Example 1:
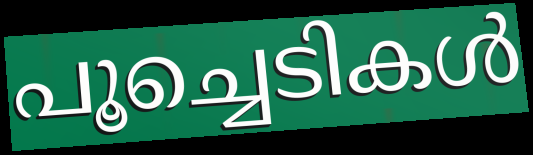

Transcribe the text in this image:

പൂച്ചെടികൾ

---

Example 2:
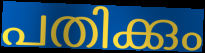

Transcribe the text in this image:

പതിക്കും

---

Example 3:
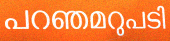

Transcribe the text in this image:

പറഞമറുപടി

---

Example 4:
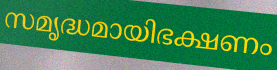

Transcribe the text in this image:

സമൃദ്ധമായിഭക്ഷണം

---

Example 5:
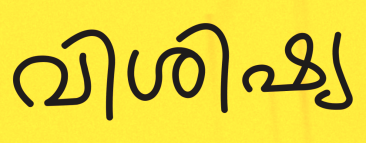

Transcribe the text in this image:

വിശിഷ്യ